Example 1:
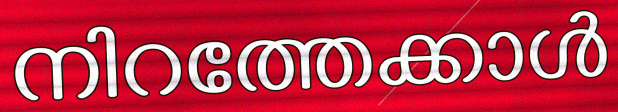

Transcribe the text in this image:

നിറത്തേക്കാൾ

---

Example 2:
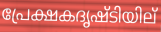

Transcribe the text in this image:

പ്രേക്ഷകദൃഷ്ടിയില്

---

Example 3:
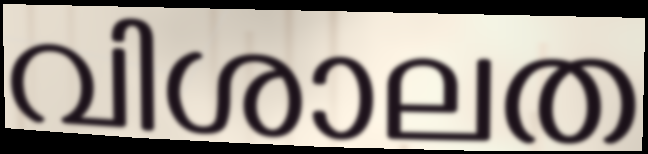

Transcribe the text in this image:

വിശാലത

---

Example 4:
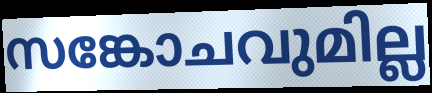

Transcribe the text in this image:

സങ്കോചവുമില്ല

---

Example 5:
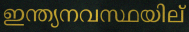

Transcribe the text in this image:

ഇന്ത്യനവസ്ഥയില്